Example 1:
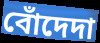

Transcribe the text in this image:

বোঁদেদা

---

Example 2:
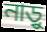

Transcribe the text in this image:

নাড়ু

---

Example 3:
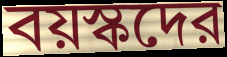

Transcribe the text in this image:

বয়স্কদের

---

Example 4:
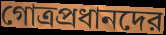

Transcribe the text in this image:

গোত্রপ্রধানদের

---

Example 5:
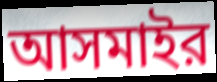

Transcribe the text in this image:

আসমাইর